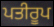
ਪਤੀਰੂਪ